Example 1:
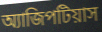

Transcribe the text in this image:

অ্যাজিপটিয়াস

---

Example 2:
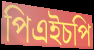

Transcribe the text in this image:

পিএইচপি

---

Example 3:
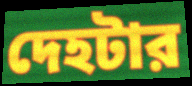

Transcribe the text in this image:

দেহটার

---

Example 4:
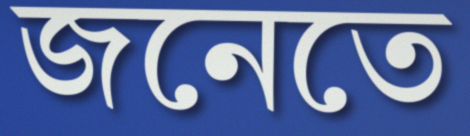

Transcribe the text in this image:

জনেতে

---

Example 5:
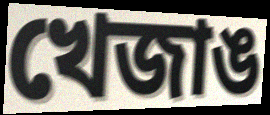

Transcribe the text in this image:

খেজাঙ